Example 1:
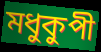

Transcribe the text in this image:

মধুকুপী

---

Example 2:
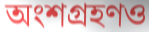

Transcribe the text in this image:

অংশগ্রহণও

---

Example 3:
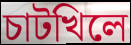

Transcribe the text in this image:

চাটখিলে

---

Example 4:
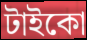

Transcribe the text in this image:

টাইকো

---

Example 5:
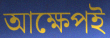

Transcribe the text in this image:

আক্ষেপই